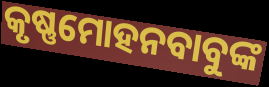
କୃଷ୍ଣମୋହନବାବୁଙ୍କ